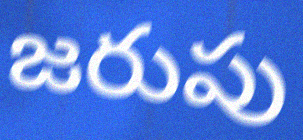
జరుపు